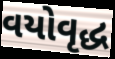
વયોવૃદ્ધ